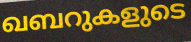
ഖബറുകളുടെ